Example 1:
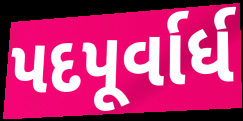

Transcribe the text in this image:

પદપૂર્વાર્ધ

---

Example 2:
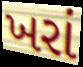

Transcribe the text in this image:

ખરાં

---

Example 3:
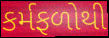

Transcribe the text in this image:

કર્મફળોથી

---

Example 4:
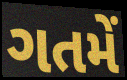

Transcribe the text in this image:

ગતમેં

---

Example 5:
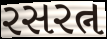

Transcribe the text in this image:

રસરત્ન